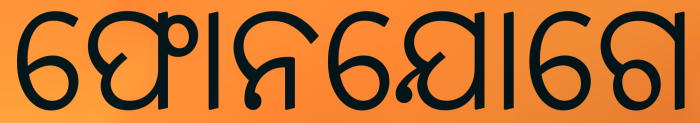
ଫୋନଯୋଗେ